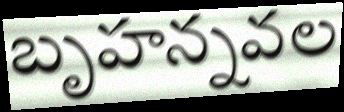
బృహన్నవల